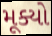
મૂક્યો